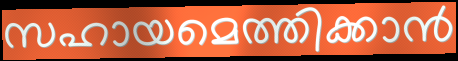
സഹായമെത്തിക്കാൻ